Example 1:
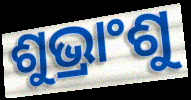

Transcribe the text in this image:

ଶୁଭ୍ରାଂଶୁ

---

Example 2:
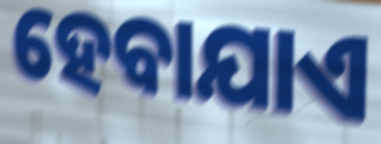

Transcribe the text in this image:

ହେବାଯାଏ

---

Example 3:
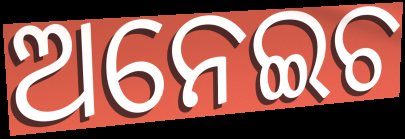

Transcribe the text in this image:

ଅନେଇଚ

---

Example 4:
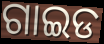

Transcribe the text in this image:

ଗାଇଡ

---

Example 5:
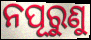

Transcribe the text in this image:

ନପୂରୁଣୁ